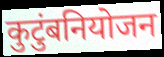
कुटुंबनियोजन